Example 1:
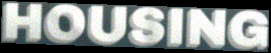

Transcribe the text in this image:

HOUSING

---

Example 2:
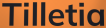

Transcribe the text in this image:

Tilletia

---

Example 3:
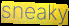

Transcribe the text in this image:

sneaky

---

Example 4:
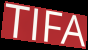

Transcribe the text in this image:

TIFA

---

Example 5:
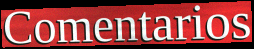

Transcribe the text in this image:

Comentarios